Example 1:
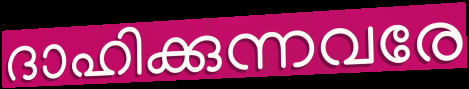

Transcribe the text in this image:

ദാഹിക്കുന്നവരേ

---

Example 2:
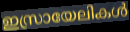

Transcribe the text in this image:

ഇസ്രായേലികൾ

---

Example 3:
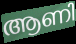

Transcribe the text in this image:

ആണി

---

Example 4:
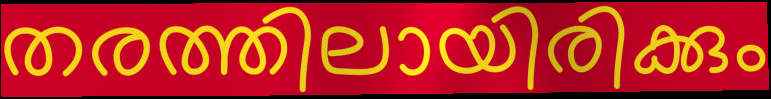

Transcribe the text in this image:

തരത്തിലായിരിക്കും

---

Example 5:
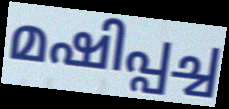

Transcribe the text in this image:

മഷിപ്പച്ച